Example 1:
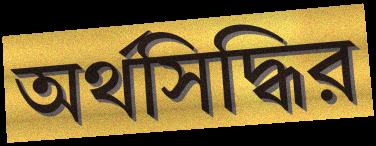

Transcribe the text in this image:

অর্থসিদ্ধির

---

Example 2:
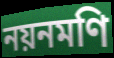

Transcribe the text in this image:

নয়নমণি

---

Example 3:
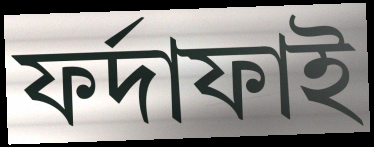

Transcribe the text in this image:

ফর্দাফাই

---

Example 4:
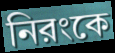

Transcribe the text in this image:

নিরংকে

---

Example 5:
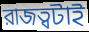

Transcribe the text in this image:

রাজত্বটাই